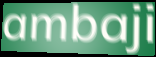
ambaji